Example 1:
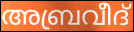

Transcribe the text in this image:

അബ്രവീദ്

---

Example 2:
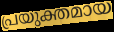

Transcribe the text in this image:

പ്രയുക്തമായ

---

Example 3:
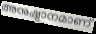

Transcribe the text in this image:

അനുഷ്ഠാനമാണ്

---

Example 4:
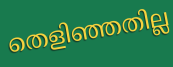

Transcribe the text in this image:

തെളിഞ്ഞതില്ല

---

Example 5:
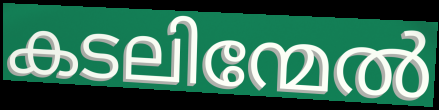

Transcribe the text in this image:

കടലിന്മേൽ